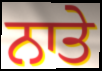
ਨਾਤੇ